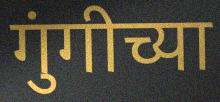
गुंगीच्या